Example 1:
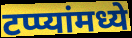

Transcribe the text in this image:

टप्प्यांमध्ये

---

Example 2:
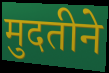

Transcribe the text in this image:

मुदतीने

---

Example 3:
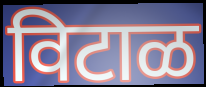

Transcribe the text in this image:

विटाळ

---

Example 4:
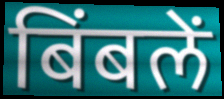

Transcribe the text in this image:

बिंबलें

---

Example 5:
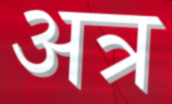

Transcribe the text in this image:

अत्र